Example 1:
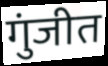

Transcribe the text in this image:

गुंजीत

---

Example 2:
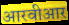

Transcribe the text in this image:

आरवीआर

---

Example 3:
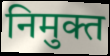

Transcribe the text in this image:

निमुक्त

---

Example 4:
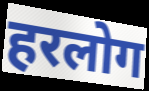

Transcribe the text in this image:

हरलोग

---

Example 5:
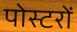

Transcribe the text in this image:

पोस्‍टरों